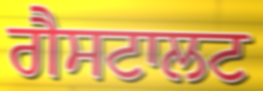
ਗੈਸਟਾਲਟ